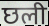
छली